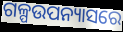
ଗଳ୍ପଉପନ୍ୟାସରେ